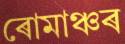
ৰোমাঞ্চৰ